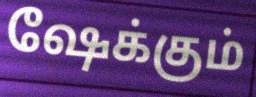
ஷேக்கும்